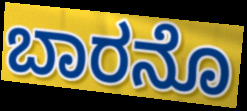
ಬಾರನೊ